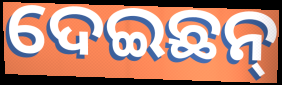
ଦେଇଛନ୍